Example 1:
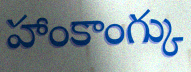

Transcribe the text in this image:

హాంకాంగ్కు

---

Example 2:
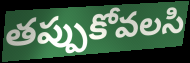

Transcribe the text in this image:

తప్పుకోవలసి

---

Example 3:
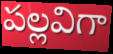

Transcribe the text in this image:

పల్లవిగా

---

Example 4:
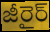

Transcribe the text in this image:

జీరైర్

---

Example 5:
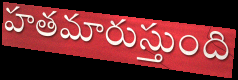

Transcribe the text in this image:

హతమారుస్తుంది